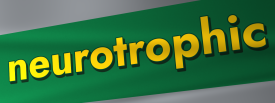
neurotrophic